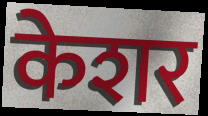
केशर